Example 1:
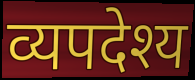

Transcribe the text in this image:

व्यपदेश्य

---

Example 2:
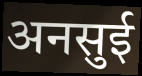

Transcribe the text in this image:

अनसुई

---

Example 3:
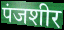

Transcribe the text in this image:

पंजशीर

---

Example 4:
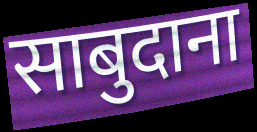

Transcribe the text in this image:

साबुदाना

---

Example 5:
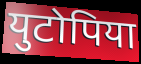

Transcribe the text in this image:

युटोपिया